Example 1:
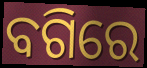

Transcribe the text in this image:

ବଗିରେ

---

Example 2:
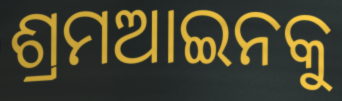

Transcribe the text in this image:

ଶ୍ରମଆଇନକୁ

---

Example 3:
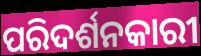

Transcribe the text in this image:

ପରିଦର୍ଶନକାରୀ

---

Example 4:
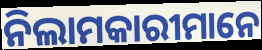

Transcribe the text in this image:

ନିଲାମକାରୀମାନେ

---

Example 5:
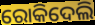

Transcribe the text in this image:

ରୋକିଦେଲି